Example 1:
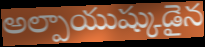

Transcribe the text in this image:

అల్పాయుష్కుడైన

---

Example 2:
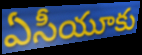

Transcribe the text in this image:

ఏసీయూకు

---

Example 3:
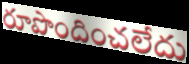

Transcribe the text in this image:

రూపొందించలేదు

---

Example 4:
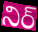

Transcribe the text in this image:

నిర్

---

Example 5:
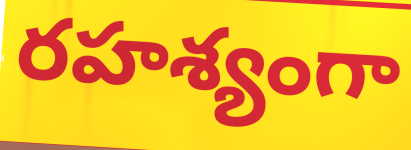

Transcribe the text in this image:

రహశ్యంగా